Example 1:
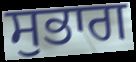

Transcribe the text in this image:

ਸੁਭਾਗ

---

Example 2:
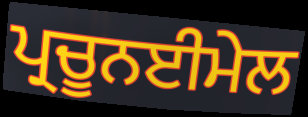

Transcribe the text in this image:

ਪ੍ਰਚੂਨਈਮੇਲ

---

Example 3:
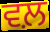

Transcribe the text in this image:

ਵਲ਼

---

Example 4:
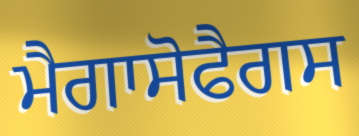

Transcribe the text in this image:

ਮੈਗਾਸੋਫੈਗਸ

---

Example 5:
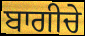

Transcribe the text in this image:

ਬਾਗੀਚੇ